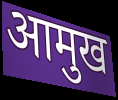
आमुख